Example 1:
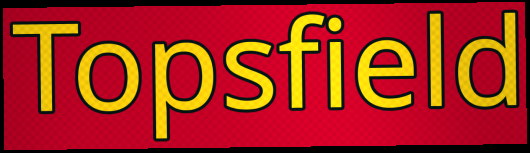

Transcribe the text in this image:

Topsfield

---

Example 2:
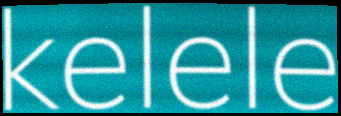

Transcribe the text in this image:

kelele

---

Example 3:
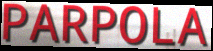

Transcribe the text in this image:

PARPOLA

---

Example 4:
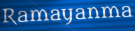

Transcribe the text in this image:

Ramayanma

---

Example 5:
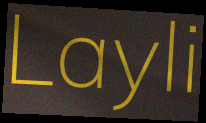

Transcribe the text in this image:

Layli